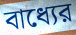
বাধ্যের